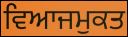
ਵਿਆਜਮੁਕਤ